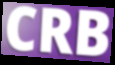
CRB